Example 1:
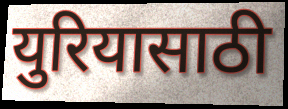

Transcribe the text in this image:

युरियासाठी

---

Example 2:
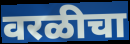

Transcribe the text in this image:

वरळीचा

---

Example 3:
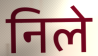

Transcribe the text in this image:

निले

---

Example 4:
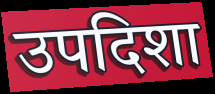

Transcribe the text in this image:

उपदिशा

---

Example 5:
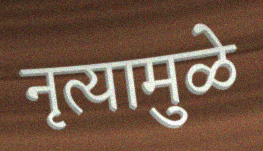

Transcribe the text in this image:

नृत्यामुळे